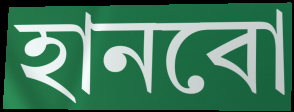
হানবো